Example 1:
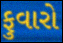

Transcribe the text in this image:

ફુવારો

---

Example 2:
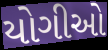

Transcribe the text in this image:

યોગીઓ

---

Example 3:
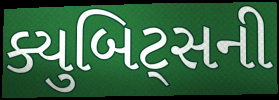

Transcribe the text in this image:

ક્યુબિટ્સની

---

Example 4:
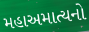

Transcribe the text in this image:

મહાઅમાત્યનો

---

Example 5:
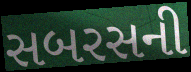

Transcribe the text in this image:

સબરસની